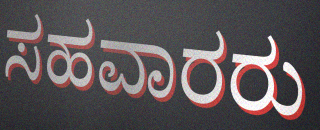
ಸಹವಾರರು